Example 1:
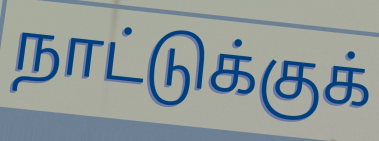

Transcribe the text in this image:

நாட்டுக்குக்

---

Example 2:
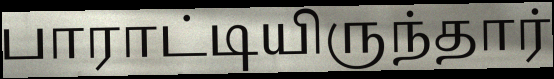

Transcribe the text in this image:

பாராட்டியிருந்தார்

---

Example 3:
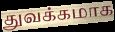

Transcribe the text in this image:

துவக்கமாக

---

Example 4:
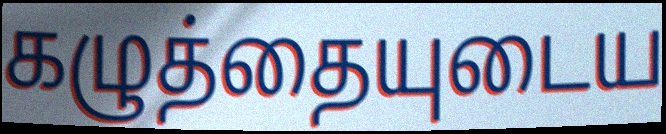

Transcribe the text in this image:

கழுத்தையுடைய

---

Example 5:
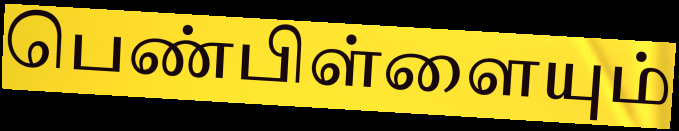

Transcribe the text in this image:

பெண்பிள்ளையும்